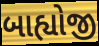
બાહ્યોજી